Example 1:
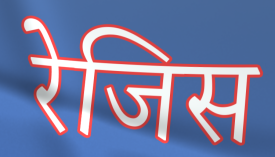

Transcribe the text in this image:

रेजिस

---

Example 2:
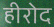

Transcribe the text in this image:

हीरोद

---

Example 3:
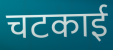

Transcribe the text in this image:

चटकाई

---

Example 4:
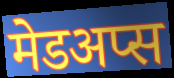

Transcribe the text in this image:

मेडअप्स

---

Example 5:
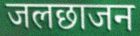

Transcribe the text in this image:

जलछाजन